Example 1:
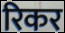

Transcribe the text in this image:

रिकर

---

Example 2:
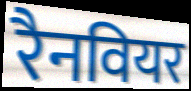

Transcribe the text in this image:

रैनवियर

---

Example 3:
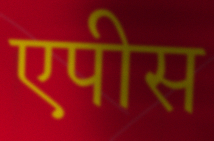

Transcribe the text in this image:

एपीस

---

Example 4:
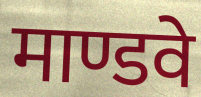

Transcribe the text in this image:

माण्डवे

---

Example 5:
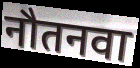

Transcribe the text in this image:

नौतनवा